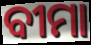
ବୀମା